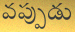
వప్పుడు